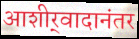
आशीर्वादानंतर